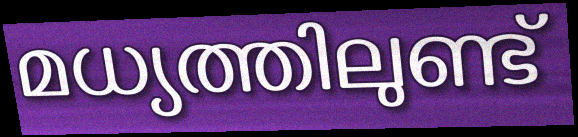
മധ്യത്തിലുണ്ട്